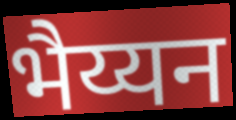
भैय्यन